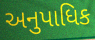
અનુપાધિક